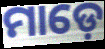
ମାଡ଼େ